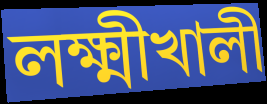
লক্ষ্মীখালী